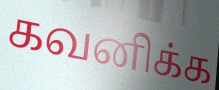
கவனிக்க